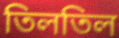
তিলতিল